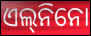
ଏଲ୍‌ନିନୋ